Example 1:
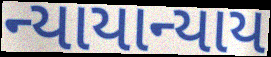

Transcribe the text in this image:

ન્યાયાન્યાય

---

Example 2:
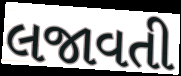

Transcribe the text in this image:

લજાવતી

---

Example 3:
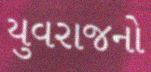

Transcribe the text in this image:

યુવરાજનો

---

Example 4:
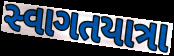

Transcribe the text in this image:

સ્વાગતયાત્રા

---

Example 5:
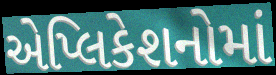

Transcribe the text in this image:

એપ્લિકેશનોમાં